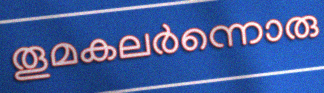
തൂമകലർന്നൊരു